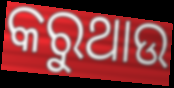
କରୁଥାଉ